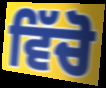
ਵਿੱਚੋ